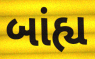
બાંહ્ય